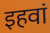
इहवां